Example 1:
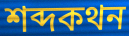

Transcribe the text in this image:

শব্দকথন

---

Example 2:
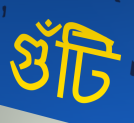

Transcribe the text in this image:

গুঁটি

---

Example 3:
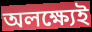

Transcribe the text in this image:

অলক্ষ্যেই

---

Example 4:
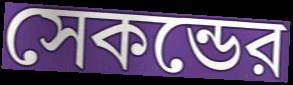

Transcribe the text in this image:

সেকন্ডের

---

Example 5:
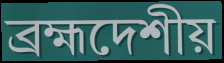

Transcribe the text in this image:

ব্রহ্মদেশীয়